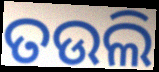
ତଉଲି